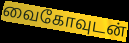
வைகோவுடன்